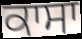
ਕਾਸਾ